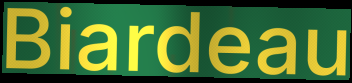
Biardeau